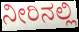
ನೀರಿನಲ್ಲಿ